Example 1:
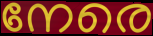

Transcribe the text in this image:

നേരെ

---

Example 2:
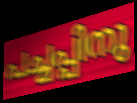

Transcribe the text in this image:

പച്ചപ്പിനു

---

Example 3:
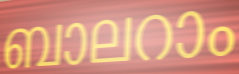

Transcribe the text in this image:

ബാലറാം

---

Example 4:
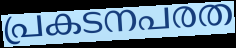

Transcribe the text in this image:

പ്രകടനപരത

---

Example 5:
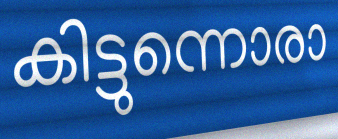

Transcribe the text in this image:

കിട്ടുന്നൊരാ